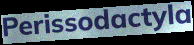
Perissodactyla